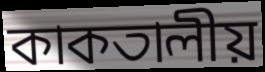
কাকতালীয়